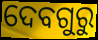
ଦେବଗୁରୁ